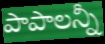
పాపాలన్నీ